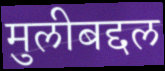
मुलीबद्दल